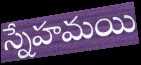
స్నేహమయి